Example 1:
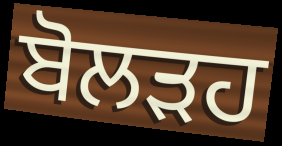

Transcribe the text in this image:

ਬੋਲੜਹ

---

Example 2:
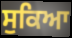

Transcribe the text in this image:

ਸੁਕਿਆ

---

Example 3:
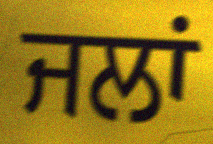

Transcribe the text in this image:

ਜਲਾਂ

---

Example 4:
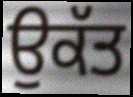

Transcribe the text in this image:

ਉਕੱਤ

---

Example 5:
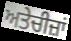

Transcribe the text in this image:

ਅਤੇਚੀਜ਼ਾਂ